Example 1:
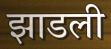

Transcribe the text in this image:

झाडली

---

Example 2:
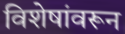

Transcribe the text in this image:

विशेषांवरून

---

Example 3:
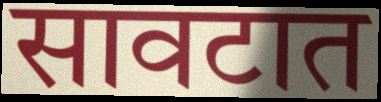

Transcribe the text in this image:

सावटात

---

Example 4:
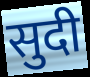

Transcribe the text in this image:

सुदी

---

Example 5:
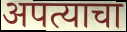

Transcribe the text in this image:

अपत्याचा